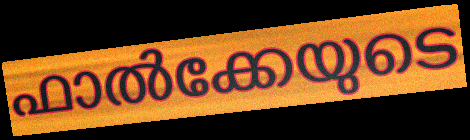
ഫാൽക്കേയുടെ